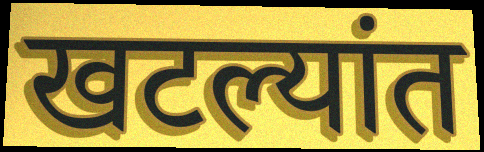
खटल्यांत